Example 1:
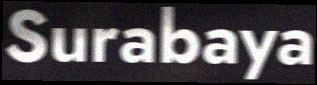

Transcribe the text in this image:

Surabaya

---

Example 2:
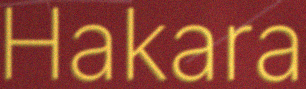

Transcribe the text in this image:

Hakara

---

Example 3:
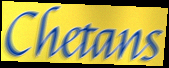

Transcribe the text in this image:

Chetans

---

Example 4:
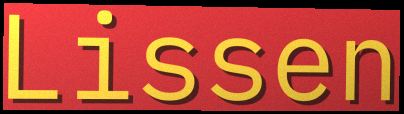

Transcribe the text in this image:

Lissen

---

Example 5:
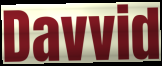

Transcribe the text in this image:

Davvid